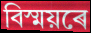
বিস্ময়ৰে